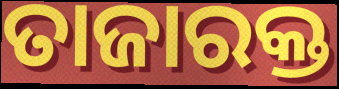
ତାଜାରକ୍ତ